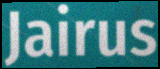
Jairus